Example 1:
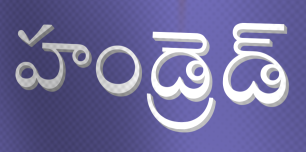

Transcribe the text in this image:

హండ్రెడ్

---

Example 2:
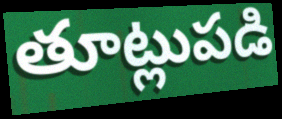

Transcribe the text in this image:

తూట్లుపడి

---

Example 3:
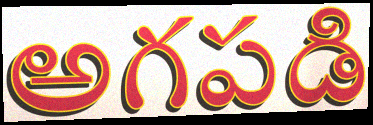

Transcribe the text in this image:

అగపడి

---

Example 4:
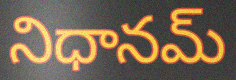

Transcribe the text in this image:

నిధానమ్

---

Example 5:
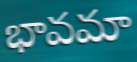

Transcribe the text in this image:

భావమా